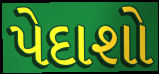
પેદાશો